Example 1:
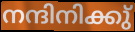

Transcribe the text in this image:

നന്ദിനിക്കു്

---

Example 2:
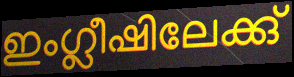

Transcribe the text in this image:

ഇംഗ്ലീഷിലേക്കു്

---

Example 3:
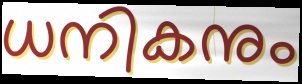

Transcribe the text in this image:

ധനികനും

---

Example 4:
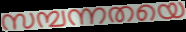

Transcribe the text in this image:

സമ്പന്നതയെ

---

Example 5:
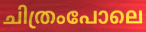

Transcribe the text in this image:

ചിത്രംപോലെ